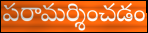
పరామర్శించడం